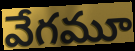
వేగమూ